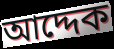
আদ্দেক